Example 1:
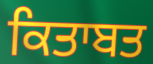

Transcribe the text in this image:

ਕਿਤਾਬਤ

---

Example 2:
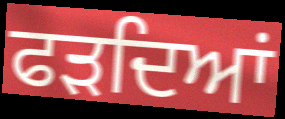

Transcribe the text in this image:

ਫੜਦਿਆਂ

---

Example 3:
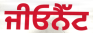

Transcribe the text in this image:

ਜੀਓਨੈੱਟ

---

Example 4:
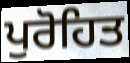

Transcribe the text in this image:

ਪੁਰੋਹਿਤ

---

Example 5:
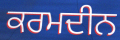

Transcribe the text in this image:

ਕਰਮਦੀਨ